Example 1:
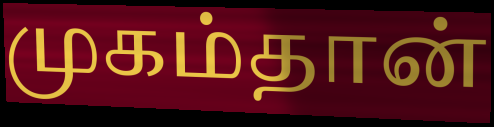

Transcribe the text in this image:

முகம்தான்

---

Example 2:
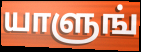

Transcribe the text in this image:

யாளுங்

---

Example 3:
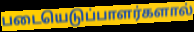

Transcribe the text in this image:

படையெடுப்பாளர்களால்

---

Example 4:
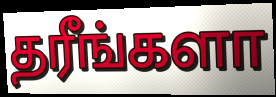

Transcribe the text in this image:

தரீங்களா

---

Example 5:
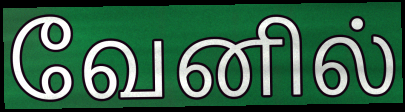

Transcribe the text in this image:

வேனில்